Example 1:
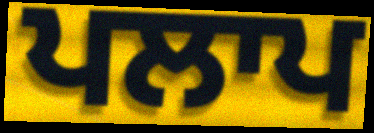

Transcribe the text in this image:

ਪਲਾਪ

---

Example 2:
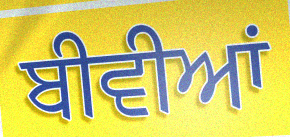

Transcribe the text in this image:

ਬੀਵੀਆਂ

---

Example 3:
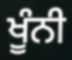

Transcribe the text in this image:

ਖੂੰਨੀ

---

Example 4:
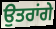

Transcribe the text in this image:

ਉਤਰਾਂਗੇ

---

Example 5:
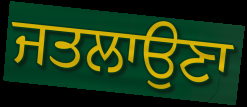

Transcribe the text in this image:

ਜਤਲਾਉਣਾ